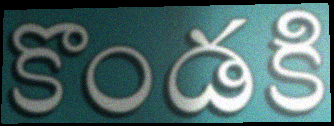
కొండకి